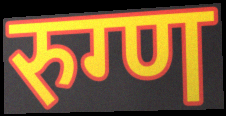
रुग्ण